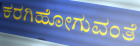
ಕರಗಿಹೋಗುವಂತೆ